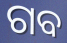
ଗବ